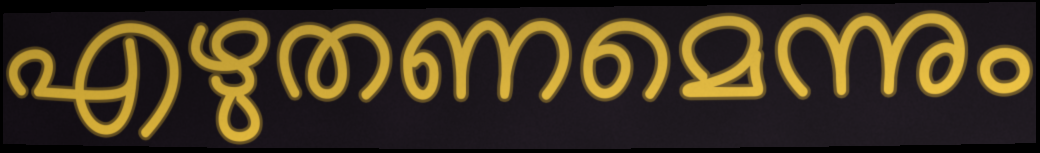
എഴുതണമെന്നും